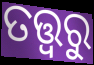
ତତ୍ତ୍ୱରୁ